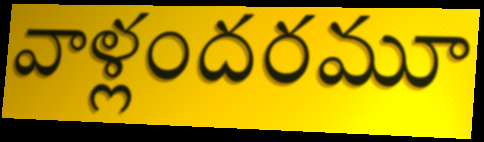
వాళ్లందరమూ